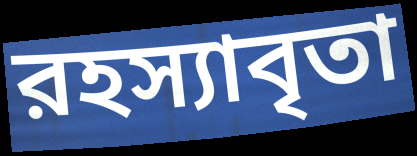
রহস্যাবৃতা